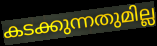
കടക്കുന്നതുമില്ല